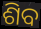
ଶିବ